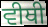
ਵੀਥੀ